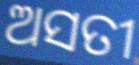
ଅସତୀ